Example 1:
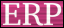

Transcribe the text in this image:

ERP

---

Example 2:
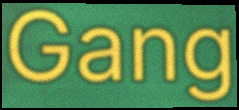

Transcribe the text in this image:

Gang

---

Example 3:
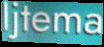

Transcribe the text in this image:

Ijtema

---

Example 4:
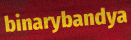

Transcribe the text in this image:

binarybandya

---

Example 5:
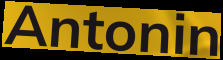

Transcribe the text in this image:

Antonin